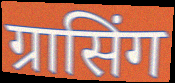
ग्रासिंग